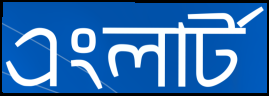
এংলার্ট